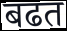
बढत